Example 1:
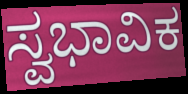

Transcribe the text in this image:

ಸ್ವಭಾವಿಕ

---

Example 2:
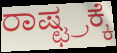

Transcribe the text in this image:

ರಾಷ್ಟ್ರಕ್ಕೆ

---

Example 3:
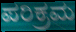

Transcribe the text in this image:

ಪರಿಕ್ರಮ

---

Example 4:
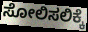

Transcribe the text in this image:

ಸೋಲಿಸಲಿಕ್ಕೆ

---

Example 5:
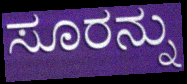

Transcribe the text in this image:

ಸೂರನ್ನು